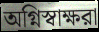
অগ্নিস্বাক্ষরা